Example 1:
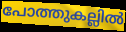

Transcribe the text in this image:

പോത്തുകല്ലിൽ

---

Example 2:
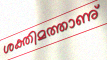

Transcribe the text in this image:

ശക്തിമത്താണു്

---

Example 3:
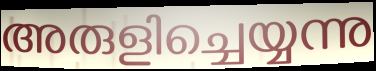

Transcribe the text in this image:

അരുളിച്ചെയ്യന്നു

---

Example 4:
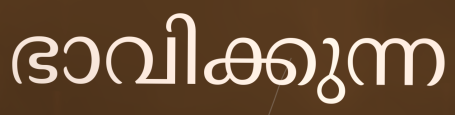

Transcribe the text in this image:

ഭാവിക്കുന്ന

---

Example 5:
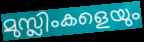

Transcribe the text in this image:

മുസ്ലിംകളെയും